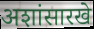
अशांसारखे